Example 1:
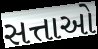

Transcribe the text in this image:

સત્તાઓ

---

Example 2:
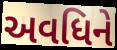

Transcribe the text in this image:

અવધિને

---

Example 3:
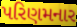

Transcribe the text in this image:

પરિણમનાર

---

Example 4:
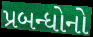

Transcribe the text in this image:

પ્રબન્ધોનો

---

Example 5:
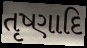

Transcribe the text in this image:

તૃષ્ણાદિ